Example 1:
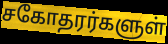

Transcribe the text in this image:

சகோதரர்களுள்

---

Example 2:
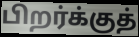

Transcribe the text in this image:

பிறர்க்குத்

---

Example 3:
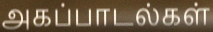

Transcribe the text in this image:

அகப்பாடல்கள்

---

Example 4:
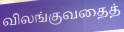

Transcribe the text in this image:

விலங்குவதைத்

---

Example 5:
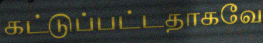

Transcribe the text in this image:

கட்டுப்பட்டதாகவே